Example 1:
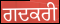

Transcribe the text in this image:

ਗਦਕਰੀ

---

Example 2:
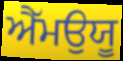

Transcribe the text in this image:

ਐੱਮਉਯੂ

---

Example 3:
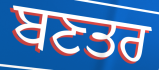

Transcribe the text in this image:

ਬਣਤਰ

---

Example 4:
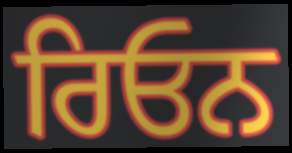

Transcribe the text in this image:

ਰਿਓਨ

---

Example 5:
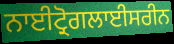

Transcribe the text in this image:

ਨਾਈਟ੍ਰੋਗਲਾਈਸਰੀਨ